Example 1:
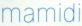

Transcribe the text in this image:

mamidi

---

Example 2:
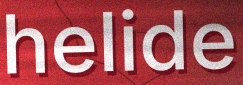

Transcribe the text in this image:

helide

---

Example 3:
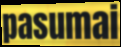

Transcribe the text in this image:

pasumai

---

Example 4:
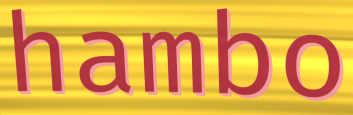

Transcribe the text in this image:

hambo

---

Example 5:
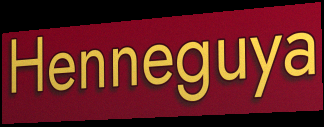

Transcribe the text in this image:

Henneguya